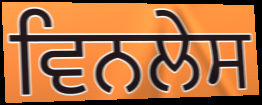
ਵਿਨਲੇਸ